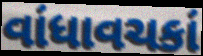
વાંધાવચકાં